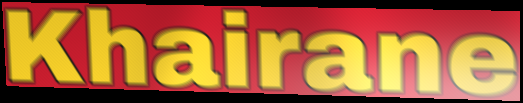
Khairane